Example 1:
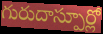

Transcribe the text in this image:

గురుదాస్పూర్లో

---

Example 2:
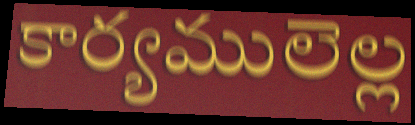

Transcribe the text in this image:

కార్యములెల్ల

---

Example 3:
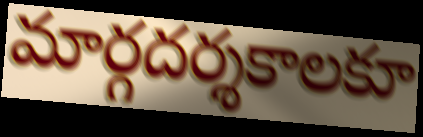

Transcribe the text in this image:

మార్గదర్శకాలకూ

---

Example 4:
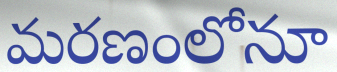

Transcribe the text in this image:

మరణంలోనూ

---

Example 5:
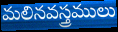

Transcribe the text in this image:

మలినవస్త్రములు